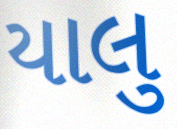
યાલુ